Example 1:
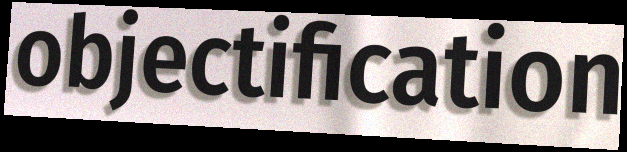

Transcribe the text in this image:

objectification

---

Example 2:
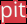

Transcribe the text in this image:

pit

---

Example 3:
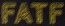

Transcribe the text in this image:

FATF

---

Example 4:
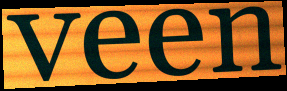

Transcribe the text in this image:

veen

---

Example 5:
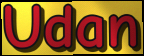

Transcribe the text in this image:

Udan